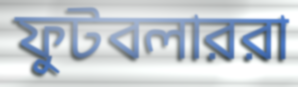
ফুটবলাররা